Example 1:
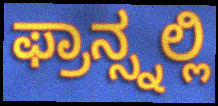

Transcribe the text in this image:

ಫ್ರಾನ್ಸ್ನಲ್ಲಿ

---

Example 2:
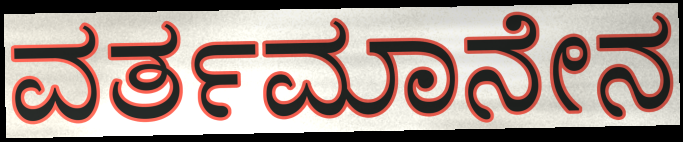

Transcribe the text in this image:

ವರ್ತಮಾನೇನ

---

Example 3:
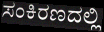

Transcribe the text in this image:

ಸಂಕಿರಣದಲ್ಲಿ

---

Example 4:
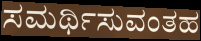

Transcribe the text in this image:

ಸಮರ್ಥಿಸುವಂತಹ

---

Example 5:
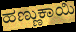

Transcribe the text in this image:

ಹಣ್ಣುಕಾಯಿ